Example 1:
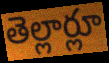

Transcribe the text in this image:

తెల్లార్లూ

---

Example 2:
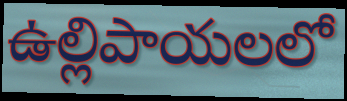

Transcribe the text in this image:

ఉల్లిపాయలలో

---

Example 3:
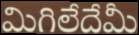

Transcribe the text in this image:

మిగిలేదేమీ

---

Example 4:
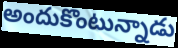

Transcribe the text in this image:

అందుకొంటున్నాడు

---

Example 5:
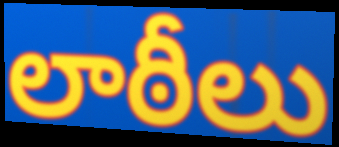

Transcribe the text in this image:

లాఠీలు